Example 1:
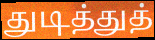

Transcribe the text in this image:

துடித்துத்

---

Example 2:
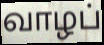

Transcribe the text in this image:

வாழப்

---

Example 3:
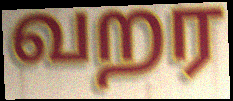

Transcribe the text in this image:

வறர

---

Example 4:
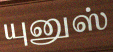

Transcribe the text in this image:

யுனுஸ்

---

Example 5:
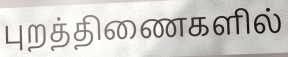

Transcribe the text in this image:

புறத்திணைகளில்